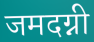
जमदग्नी